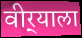
वीर्याला